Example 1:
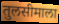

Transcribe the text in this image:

तुलसीमाला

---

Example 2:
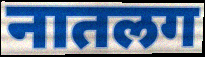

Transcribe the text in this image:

नातलग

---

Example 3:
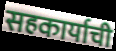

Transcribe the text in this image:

सहकार्याची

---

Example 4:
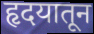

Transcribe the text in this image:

हृदयातून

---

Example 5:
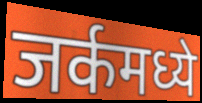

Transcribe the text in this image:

जर्कमध्ये